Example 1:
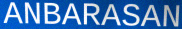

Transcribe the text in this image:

ANBARASAN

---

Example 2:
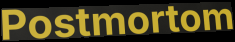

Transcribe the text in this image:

Postmortom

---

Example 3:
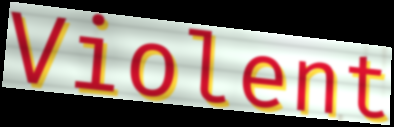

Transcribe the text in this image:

Violent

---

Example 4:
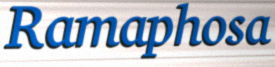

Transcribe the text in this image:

Ramaphosa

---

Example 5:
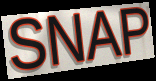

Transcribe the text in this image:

SNAP